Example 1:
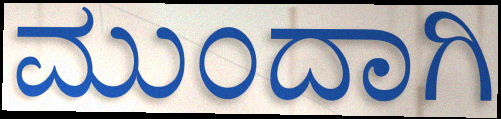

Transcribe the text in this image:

ಮುಂದಾಗಿ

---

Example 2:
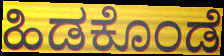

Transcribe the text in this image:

ಹಿಡಕೊಂಡೆ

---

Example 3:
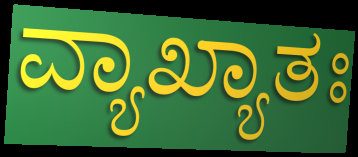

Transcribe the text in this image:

ವ್ಯಾಖ್ಯಾತಃ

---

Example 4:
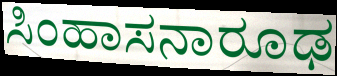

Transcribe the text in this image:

ಸಿಂಹಾಸನಾರೂಢ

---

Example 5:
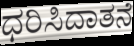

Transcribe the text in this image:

ಧರಿಸಿದಾತನೆ